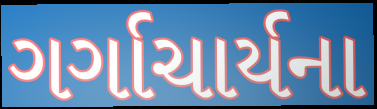
ગર્ગાચાર્યના